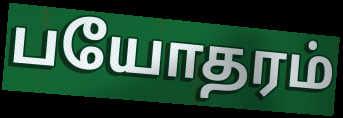
பயோதரம்